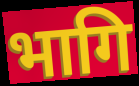
भागि